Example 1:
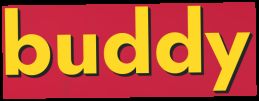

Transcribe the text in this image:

buddy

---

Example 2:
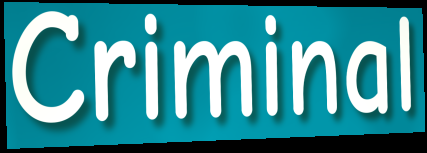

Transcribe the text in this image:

Criminal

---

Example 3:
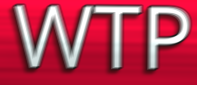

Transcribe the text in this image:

WTP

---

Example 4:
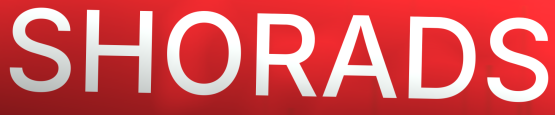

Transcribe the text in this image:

SHORADS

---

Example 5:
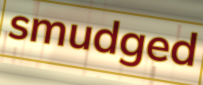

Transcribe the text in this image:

smudged